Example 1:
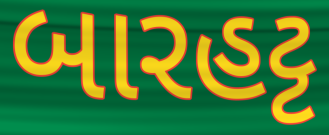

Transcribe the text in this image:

બારહટ્ટ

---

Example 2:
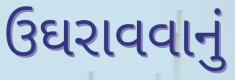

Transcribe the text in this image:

ઉઘરાવવાનું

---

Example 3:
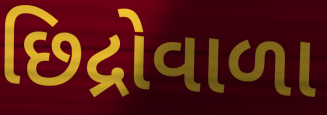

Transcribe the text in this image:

છિદ્રોવાળા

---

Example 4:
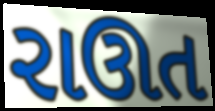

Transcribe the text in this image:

રાઊત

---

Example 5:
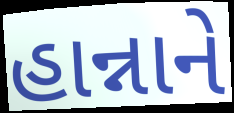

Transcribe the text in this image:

હાન્નાને